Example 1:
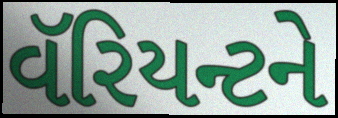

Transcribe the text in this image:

વૅરિયન્ટને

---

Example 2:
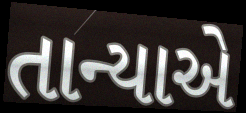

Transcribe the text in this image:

તાન્યાએ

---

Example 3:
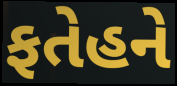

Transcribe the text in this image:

ફતેહને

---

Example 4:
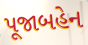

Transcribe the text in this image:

પૂજાબહેન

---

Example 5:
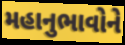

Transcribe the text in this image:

મહાનુભાવોને